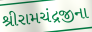
શ્રીરામચંદ્રજીના